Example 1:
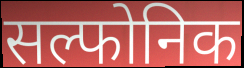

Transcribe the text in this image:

सल्फोनिक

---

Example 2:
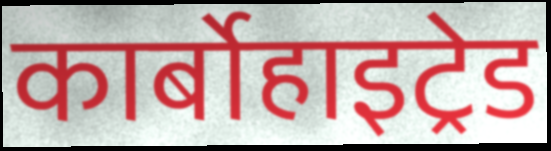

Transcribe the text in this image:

कार्बोहाइट्रेड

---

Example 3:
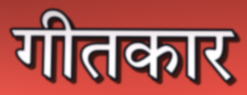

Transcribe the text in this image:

गीतकार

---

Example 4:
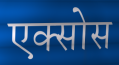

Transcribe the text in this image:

एक्सोस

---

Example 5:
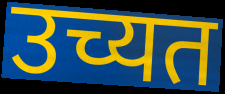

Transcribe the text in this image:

उच्यत